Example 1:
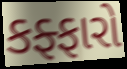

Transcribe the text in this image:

કફ્ફારો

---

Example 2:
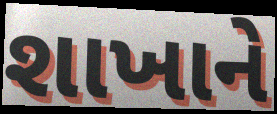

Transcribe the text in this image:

શાખાને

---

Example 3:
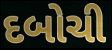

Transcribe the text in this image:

દબોચી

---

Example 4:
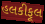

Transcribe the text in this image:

હલકીફૂલ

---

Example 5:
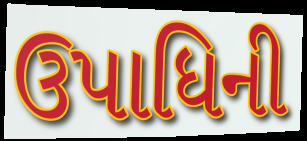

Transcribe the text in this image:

ઉપાધિની